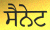
ਸੈਨੇਟ